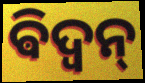
ଵିଦ୍ଵନ୍